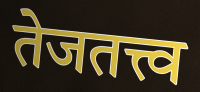
तेजतत्त्व